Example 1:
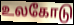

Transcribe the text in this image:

உலகோடு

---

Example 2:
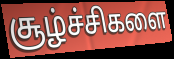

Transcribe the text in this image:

சூழ்ச்சிகளை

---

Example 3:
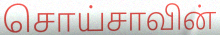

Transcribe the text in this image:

சொய்சாவின்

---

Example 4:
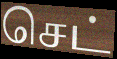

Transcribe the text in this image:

செட்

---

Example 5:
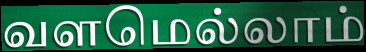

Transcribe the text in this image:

வளமெல்லாம்